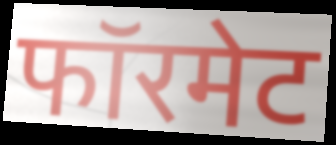
फॉरमेट